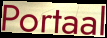
Portaal